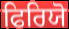
ਫਿਰਿਯੋ